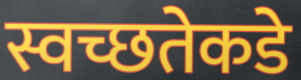
स्वच्छतेकडे